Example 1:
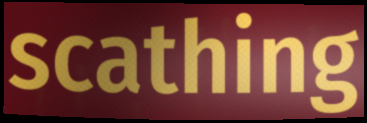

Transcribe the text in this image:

scathing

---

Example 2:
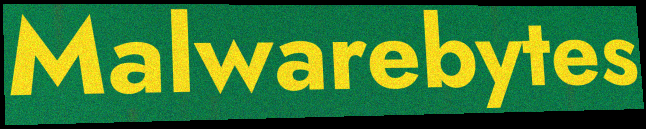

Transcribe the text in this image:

Malwarebytes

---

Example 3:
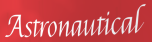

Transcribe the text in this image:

Astronautical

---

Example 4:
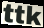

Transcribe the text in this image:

ttk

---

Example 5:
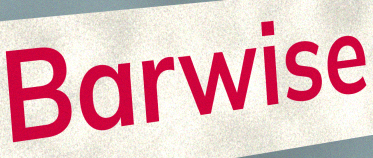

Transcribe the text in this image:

Barwise